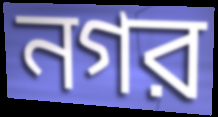
নগর